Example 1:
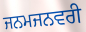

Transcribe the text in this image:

ਜਨਮਜਨਵਰੀ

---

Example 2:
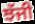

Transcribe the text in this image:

ਝੱਜੀ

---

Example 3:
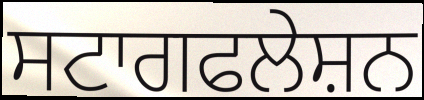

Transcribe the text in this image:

ਸਟਾਗਫਲੇਸ਼ਨ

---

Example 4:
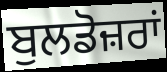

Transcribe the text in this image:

ਬੁਲਡੋਜ਼ਰਾਂ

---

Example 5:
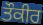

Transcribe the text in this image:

ਤੌਕੀਰ